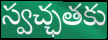
స్వచ్ఛతకు